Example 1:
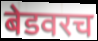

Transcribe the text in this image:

बेडवरच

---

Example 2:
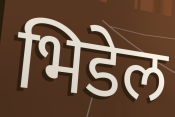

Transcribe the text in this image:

भिडेल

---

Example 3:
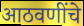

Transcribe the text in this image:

आठवणींचे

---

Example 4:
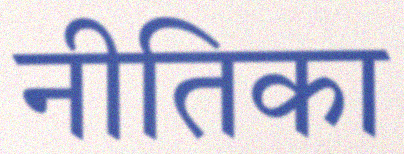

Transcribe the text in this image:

नीतिका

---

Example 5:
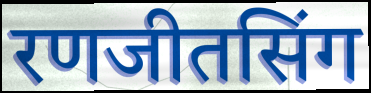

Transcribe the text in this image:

रणजीतसिंग